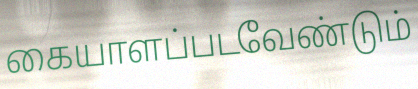
கையாளப்படவேண்டும்